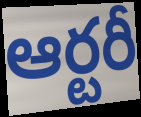
ఆర్టరీ